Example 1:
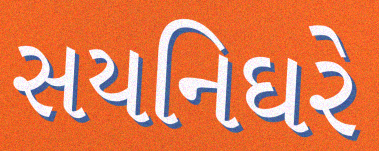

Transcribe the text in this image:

સયનિઘરે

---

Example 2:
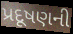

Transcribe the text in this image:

પ્રદૂષણની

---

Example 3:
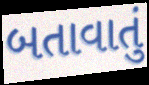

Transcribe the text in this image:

બતાવાતું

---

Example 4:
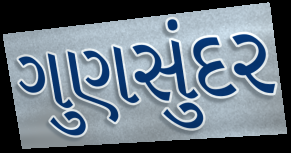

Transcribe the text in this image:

ગુણસુંદર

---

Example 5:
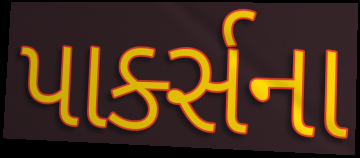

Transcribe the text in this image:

પાર્ક્સના